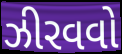
ઝીરવવો